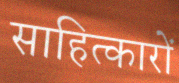
साहित्कारों